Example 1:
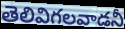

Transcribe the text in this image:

తెలివిగలవాడనీ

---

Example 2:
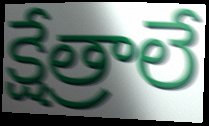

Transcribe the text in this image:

క్షేత్రాలే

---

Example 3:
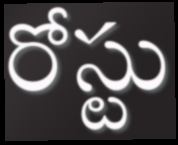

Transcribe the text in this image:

రోస్టు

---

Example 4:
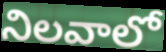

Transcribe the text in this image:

నిలవాలో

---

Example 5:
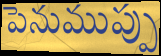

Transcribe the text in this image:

పెనుముప్పు